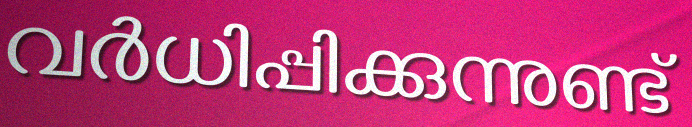
വർധിപ്പിക്കുന്നുണ്ട്